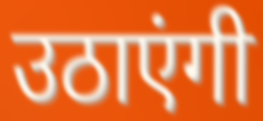
उठाएंगी